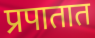
प्रपातात